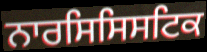
ਨਾਰਸਿਸਿਸਟਿਕ